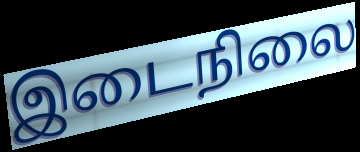
இடைநிலை